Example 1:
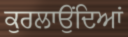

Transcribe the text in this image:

ਕੁਰਲਾਉਂਦਿਆਂ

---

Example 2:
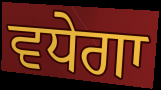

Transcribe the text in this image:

ਵਧੇਗਾ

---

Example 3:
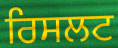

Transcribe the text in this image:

ਰਿਸਲਟ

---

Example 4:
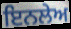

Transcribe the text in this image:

ਇਨਲੇਅ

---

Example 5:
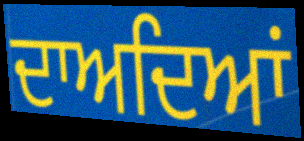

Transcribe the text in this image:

ਦਾਅਦਿਆਂ